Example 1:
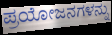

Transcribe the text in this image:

ಪ್ರಯೋಜನಗಳನ್ನು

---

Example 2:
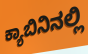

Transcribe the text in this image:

ಕ್ಯಾಬಿನಿನಲ್ಲಿ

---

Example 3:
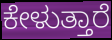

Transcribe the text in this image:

ಕೇಳುತ್ತಾರೆ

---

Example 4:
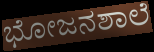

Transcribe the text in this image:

ಭೋಜನಶಾಲೆ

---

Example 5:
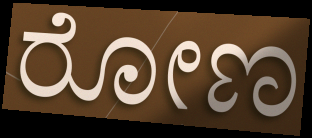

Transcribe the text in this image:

ರೋಣ